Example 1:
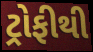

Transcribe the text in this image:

ટ્રોફીથી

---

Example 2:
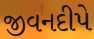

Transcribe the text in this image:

જીવનદીપે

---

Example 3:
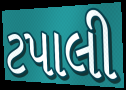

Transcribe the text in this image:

ટપાલી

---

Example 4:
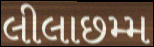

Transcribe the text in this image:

લીલાછમ્મ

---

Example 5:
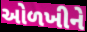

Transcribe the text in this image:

ઓળખીને